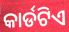
କାର୍ଡଟିଏ